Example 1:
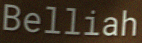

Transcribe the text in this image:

Belliah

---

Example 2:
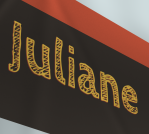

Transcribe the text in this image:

Juliane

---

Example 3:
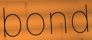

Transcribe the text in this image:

bond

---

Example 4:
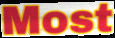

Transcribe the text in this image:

Most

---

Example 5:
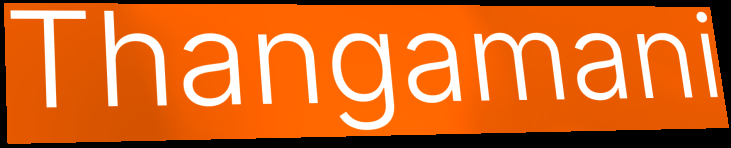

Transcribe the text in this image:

Thangamani